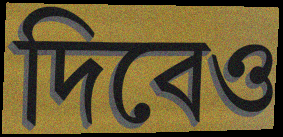
দিবেও